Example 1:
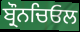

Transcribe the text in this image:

ਬ੍ਰੌਨਚਿਓਲ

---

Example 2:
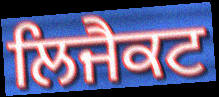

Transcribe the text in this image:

ਲਿਜੈਕਟ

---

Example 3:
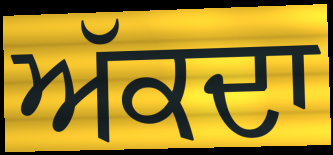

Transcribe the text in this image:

ਅੱਕਦਾ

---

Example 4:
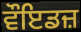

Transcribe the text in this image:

ਵੌਇਡਜ਼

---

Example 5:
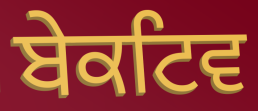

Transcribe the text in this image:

ਬੇਕਟਿਵ